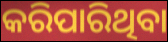
କରିପାରିଥିବା